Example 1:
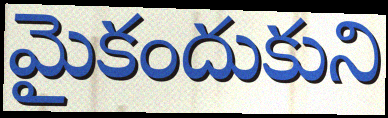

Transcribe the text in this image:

మైకందుకుని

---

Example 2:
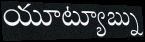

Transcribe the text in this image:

యూట్యూబ్ను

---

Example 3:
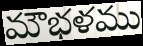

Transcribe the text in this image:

మౌభళము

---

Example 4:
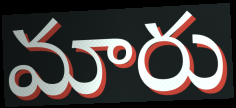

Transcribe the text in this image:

మారు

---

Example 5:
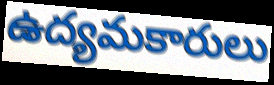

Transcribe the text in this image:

ఉద్యమకారులు